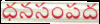
ధనసంపద